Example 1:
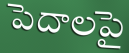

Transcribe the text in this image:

పెదాలపై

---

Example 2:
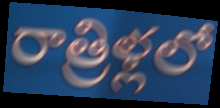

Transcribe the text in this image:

రాత్రిళ్లలో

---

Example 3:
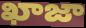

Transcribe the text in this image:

ఖాజా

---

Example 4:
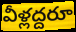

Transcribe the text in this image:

వీళ్లద్దరూ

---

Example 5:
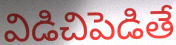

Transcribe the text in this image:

విడిచిపెడితే